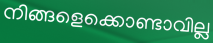
നിങ്ങളെക്കൊണ്ടാവില്ല